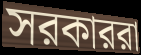
সরকাররা